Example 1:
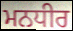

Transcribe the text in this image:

ਮਨਧੀਰ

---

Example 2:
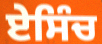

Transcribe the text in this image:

ਏਸਿੰਚ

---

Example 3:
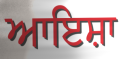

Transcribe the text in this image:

ਆਇਸ਼ਾ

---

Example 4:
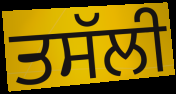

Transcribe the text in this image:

ਤਸੱਲੀ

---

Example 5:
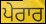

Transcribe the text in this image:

ਪੇਰਾਰ